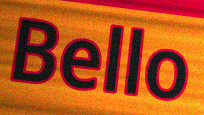
Bello